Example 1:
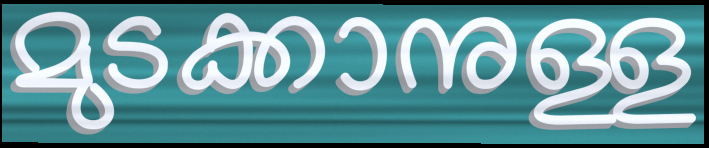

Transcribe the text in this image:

മുടക്കാനുള്ള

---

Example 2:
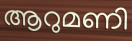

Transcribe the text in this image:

ആറുമണി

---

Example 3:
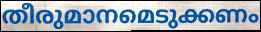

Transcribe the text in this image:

തീരുമാനമെടുക്കണം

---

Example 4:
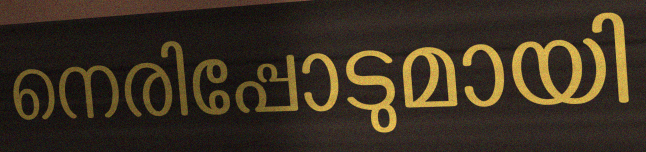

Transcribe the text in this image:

നെരിപ്പോടുമായി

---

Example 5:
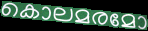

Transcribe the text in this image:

കൊലമരമോ